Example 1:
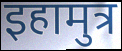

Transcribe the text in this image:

इहामुत्र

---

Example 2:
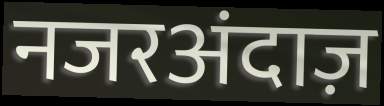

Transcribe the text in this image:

नजरअंदाज़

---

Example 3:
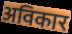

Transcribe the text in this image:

अविकार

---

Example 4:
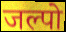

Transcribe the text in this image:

जल्पो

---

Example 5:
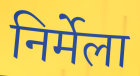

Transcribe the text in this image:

निर्मेला